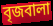
বৃজবালা